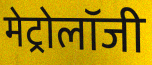
मेट्रोलॉजी